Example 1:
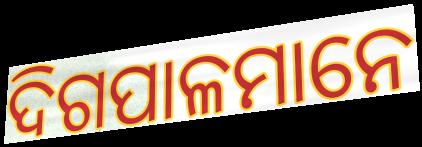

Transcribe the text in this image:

ଦିଗପାଳମାନେ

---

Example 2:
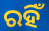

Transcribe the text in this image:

ରହିଁ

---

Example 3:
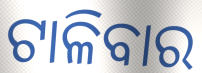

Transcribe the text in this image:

ଟାଳିବାର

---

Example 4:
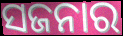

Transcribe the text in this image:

ସଜନାର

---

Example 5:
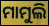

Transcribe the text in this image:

ମାମୁଲି